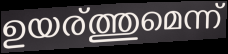
ഉയര്ത്തുമെന്ന്